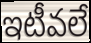
ఇటీవలే